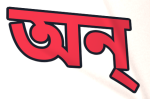
অন্